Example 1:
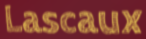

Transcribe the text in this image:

Lascaux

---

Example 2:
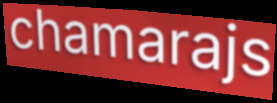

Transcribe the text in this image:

chamarajs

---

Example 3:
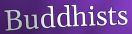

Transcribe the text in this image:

Buddhists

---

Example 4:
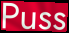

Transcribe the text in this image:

Puss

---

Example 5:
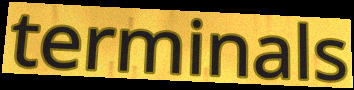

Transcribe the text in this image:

terminals